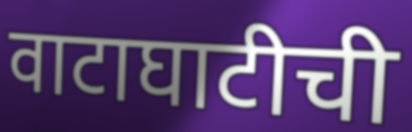
वाटाघाटीची